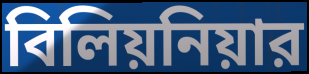
বিলিয়নিয়ার